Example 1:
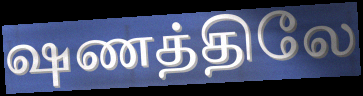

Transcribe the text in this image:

ஷணத்திலே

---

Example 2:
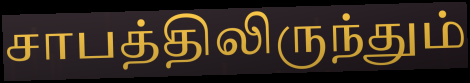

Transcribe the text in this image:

சாபத்திலிருந்தும்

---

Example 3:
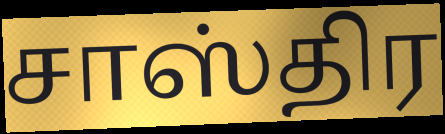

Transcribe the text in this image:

சாஸ்திர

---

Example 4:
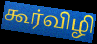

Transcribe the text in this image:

கூர்விழி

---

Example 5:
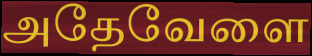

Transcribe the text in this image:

அதேவேளை